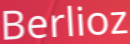
Berlioz